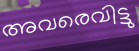
അവരെവിട്ടു